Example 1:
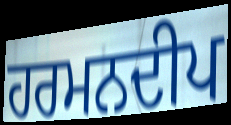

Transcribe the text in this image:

ਹਰਮਨਦੀਪ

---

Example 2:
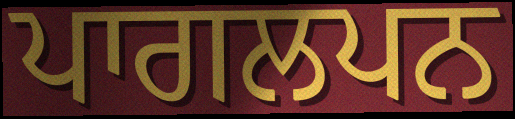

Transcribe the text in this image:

ਪਾਗਲਪਨ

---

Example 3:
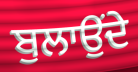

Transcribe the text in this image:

ਬੁਲਾਉਂਦੇ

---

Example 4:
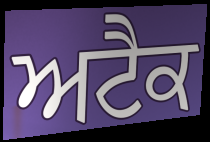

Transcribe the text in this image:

ਅਟੈਕ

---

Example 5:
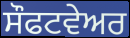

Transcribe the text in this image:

ਸੌਫਟਵੇਅਰ